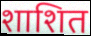
शाशित